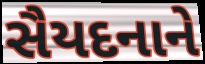
સૈયદનાને